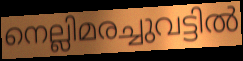
നെല്ലിമരച്ചുവട്ടിൽ